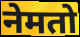
नेमतो